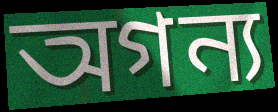
অগন্য